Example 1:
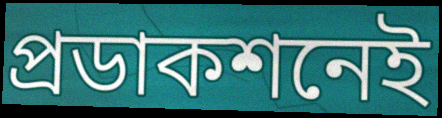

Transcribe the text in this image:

প্রডাকশনেই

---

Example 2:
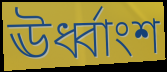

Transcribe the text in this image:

ঊর্ধ্বাংশ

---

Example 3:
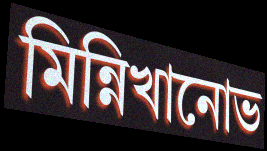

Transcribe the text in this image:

মিন্নিখানোভ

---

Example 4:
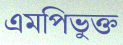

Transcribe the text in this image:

এমপিভুক্ত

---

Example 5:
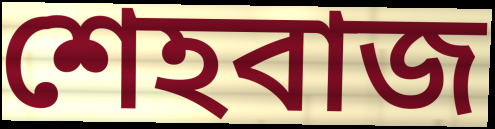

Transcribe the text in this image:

শেহবাজ